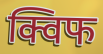
क्विफ